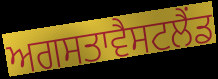
ਅਗਸਤਾਵੈਸਟਲੈਂਡ